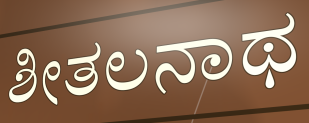
ಶೀತಲನಾಥ